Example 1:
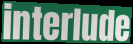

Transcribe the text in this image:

interlude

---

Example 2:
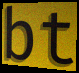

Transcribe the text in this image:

bt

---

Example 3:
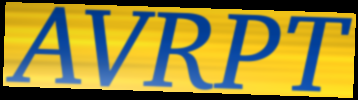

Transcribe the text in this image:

AVRPT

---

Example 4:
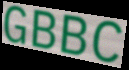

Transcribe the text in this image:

GBBC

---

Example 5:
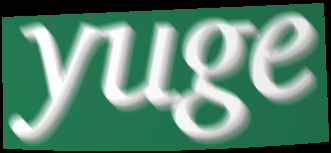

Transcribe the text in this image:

yuge